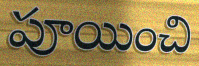
పూయించి